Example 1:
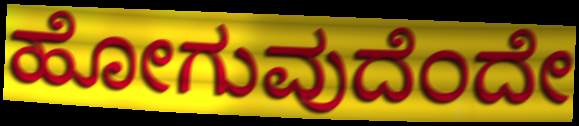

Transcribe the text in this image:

ಹೋಗುವುದೆಂದೇ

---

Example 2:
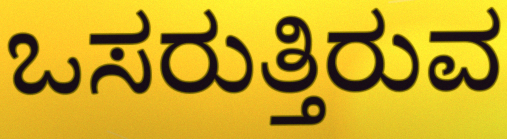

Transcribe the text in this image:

ಒಸರುತ್ತಿರುವ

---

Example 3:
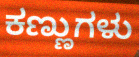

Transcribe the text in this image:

ಕಣ್ಣುಗಳು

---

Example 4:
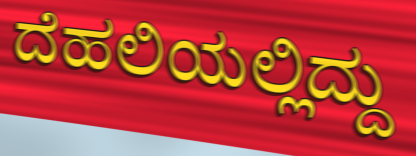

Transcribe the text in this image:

ದೆಹಲಿಯಲ್ಲಿದ್ದು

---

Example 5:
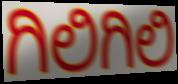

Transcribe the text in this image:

ಗಿಲಿಗಿಲಿ